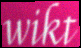
wikt